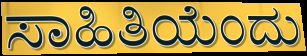
ಸಾಹಿತಿಯೆಂದು